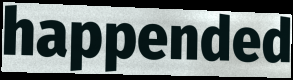
happended